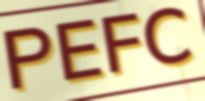
PEFC